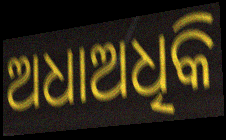
ଅଧାଅଧିକି